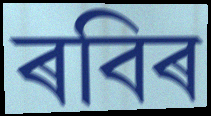
ৰবিৰ